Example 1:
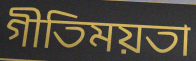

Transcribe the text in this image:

গীতিময়তা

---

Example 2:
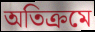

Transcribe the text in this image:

অতিক্ৰমে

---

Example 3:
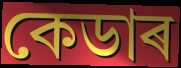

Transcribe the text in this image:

কেডাৰ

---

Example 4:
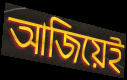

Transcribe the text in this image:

আজিয়েই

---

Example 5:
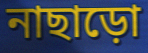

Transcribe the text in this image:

নাছাড়ো